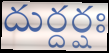
దుర్దర్షః